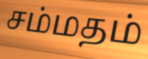
சம்மதம்